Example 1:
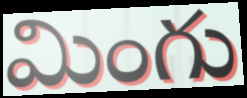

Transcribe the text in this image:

మింగు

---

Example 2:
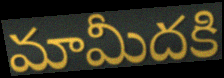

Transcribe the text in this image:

మామీదకి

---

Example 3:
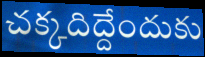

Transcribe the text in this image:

చక్కదిద్దేందుకు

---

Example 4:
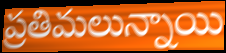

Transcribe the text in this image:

ప్రతిమలున్నాయి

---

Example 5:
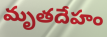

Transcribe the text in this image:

మృతదేహం